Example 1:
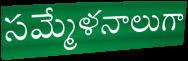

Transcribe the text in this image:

సమ్మేళనాలుగా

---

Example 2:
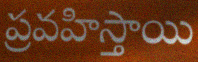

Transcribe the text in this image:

ప్రవహిస్తాయి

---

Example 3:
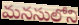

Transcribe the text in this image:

మనసులోని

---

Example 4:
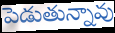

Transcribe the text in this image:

పెడుతున్నావు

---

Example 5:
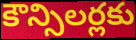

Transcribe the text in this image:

కౌన్సిలర్లకు